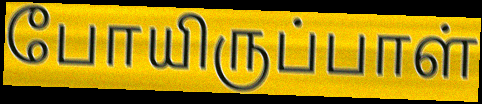
போயிருப்பாள்